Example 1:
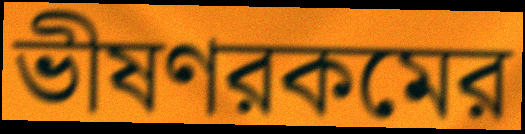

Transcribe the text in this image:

ভীষণরকমের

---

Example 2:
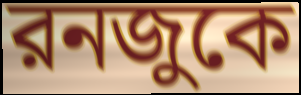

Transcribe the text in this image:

রনজুকে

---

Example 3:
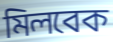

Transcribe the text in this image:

মিলবেক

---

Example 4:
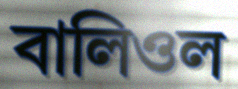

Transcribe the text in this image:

বালিওল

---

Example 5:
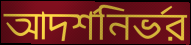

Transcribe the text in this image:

আদর্শনির্ভর